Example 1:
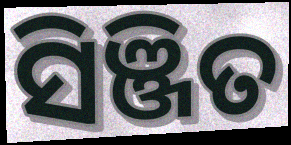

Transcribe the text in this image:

ସିଞ୍ଜିତ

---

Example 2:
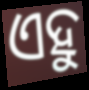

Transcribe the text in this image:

ଏହୁ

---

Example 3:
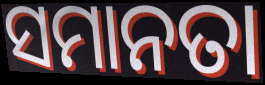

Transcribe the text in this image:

ସମାନତା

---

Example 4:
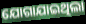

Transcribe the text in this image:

ଯୋଗାଯାଇଥିଲା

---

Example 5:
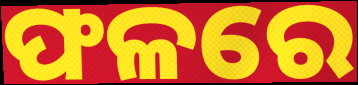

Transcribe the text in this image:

ଫଳରେ